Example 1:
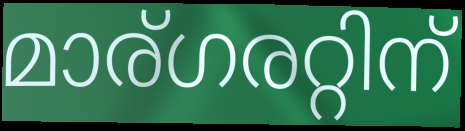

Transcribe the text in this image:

മാര്ഗരറ്റിന്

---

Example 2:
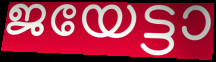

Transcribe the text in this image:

ജയേട്ടാ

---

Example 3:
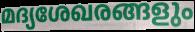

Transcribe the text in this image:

മദ്യശേഖരങ്ങളും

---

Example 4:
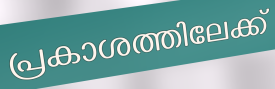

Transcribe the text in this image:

പ്രകാശത്തിലേക്ക്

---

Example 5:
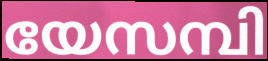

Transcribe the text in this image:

യേസമ്പി